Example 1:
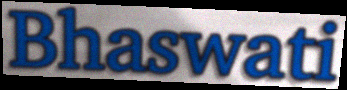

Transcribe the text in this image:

Bhaswati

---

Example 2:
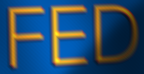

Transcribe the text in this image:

FED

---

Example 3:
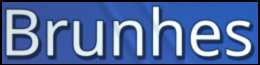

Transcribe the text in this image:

Brunhes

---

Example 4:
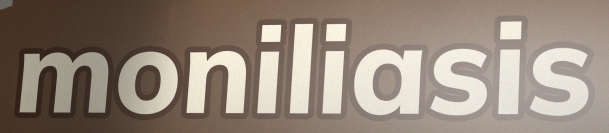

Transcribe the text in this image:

moniliasis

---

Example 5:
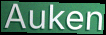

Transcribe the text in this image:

Auken